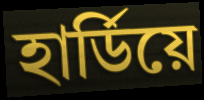
হাৰ্ডিয়ে